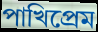
পাখিপ্রেম